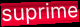
suprime